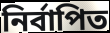
নিৰ্বাপিত